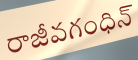
రాజీవగంధిన్